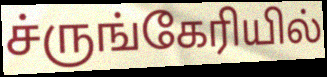
ச்ருங்கேரியில்